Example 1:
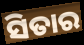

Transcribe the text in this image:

ସିତାର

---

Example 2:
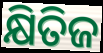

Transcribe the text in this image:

କ୍ଷିତିଜ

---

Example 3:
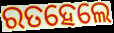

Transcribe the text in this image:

ରତହେଲେ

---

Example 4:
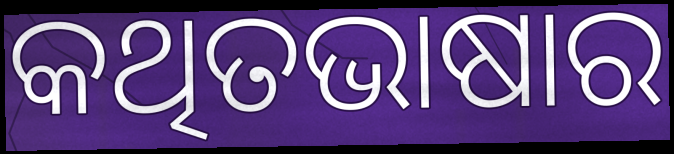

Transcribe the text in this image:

କଥିତଭାଷାର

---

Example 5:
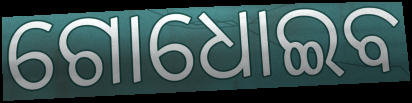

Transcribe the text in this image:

ଗୋଧୋଇବ